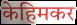
केहिमकर